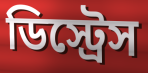
ডিস্ট্রেস